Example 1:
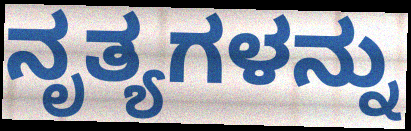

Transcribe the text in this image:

ನೃತ್ಯಗಳನ್ನು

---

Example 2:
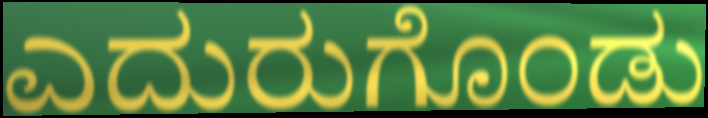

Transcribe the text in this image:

ಎದುರುಗೊಂಡು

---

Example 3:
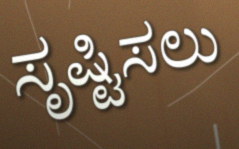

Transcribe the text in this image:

ಸೃಷ್ಟಿಸಲು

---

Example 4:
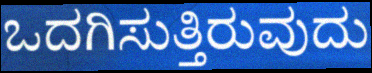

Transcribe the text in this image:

ಒದಗಿಸುತ್ತಿರುವುದು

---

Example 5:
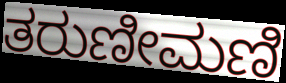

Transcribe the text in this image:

ತರುಣೀಮಣಿ